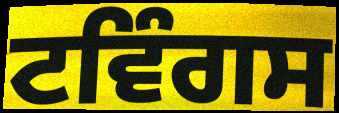
ਟਵਿੰਗਸ